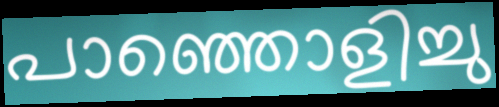
പാഞ്ഞൊളിച്ചു